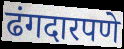
ढंगदारपणे